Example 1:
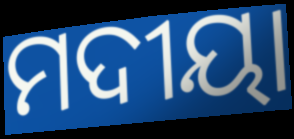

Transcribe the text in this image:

ମଦୀୟା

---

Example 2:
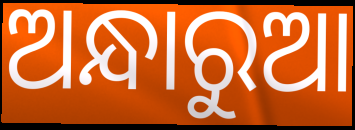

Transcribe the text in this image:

ଅନ୍ଧାରୁଆ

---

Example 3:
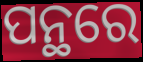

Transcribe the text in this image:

ପନ୍ଥରେ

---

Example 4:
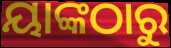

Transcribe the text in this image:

ୟାଙ୍କଠାରୁ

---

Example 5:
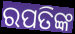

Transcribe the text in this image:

ରପତିଙ୍କ